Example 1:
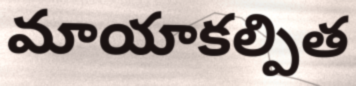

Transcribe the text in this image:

మాయాకల్పిత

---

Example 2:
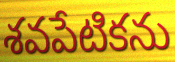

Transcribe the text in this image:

శవపేటికను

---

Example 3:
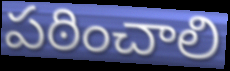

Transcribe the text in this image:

పఠించాలి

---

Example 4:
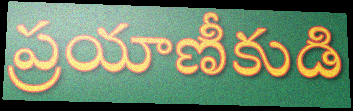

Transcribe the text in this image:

ప్రయాణీకుడి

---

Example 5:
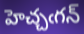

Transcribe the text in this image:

హెచ్చఁగన్